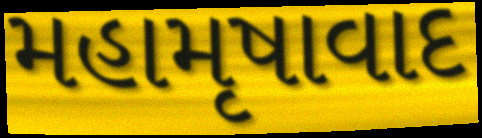
મહામૃષાવાદ